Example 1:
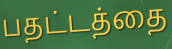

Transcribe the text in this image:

பதட்டத்தை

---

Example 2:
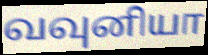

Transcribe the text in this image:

வவுனியா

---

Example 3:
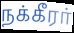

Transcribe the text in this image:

நக்கீரர்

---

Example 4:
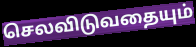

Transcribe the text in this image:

செலவிடுவதையும்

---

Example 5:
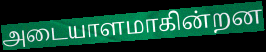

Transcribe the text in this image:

அடையாளமாகின்றன